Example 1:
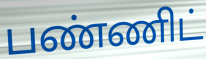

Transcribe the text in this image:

பண்ணிட்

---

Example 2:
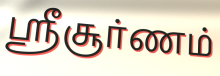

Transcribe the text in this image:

ஸ்ரீசூர்ணம்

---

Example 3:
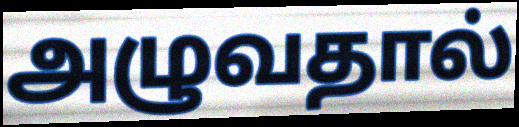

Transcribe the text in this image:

அழுவதால்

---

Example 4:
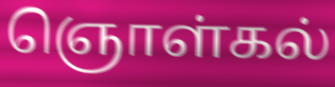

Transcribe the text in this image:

ஞொள்கல்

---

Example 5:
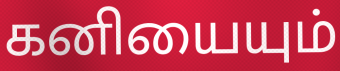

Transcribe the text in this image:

கனியையும்